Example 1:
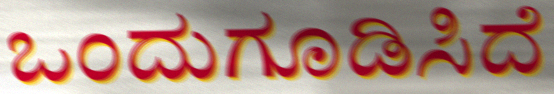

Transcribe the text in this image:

ಒಂದುಗೂಡಿಸಿದೆ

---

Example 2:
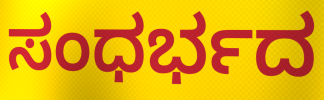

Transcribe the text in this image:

ಸಂಧರ್ಭದ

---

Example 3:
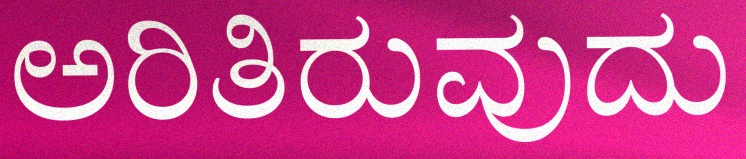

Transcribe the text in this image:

ಅರಿತಿರುವುದು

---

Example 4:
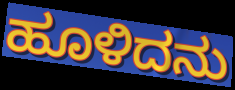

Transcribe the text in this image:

ಹೂಳಿದನು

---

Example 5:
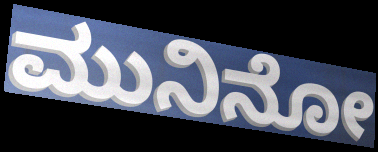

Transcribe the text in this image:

ಮುನಿನೋ